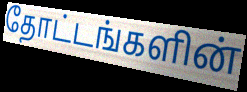
தோட்டங்களின்